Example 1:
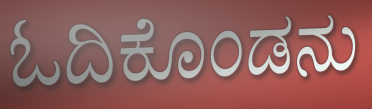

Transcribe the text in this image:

ಓದಿಕೊಂಡನು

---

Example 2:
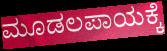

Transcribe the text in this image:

ಮೂಡಲಪಾಯಕ್ಕೆ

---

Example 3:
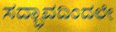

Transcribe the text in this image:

ಸದ್ಭಾವದಿಂದಲೇ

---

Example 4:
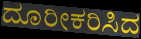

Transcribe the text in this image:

ದೂರೀಕರಿಸಿದ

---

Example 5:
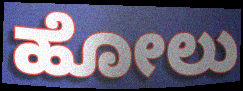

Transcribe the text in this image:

ಹೋಲು